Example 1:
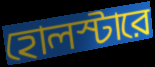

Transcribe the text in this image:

হোলস্টারে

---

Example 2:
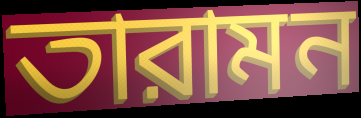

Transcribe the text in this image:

তারামন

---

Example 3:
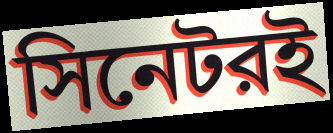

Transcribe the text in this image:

সিনেটরই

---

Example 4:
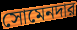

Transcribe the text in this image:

সোমেনদার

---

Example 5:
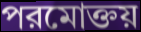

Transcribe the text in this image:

পরমোক্তয়